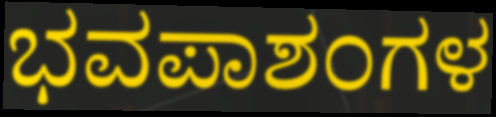
ಭವಪಾಶಂಗಳ